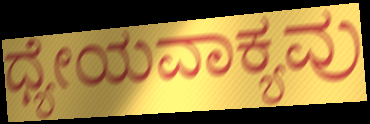
ಧ್ಯೇಯವಾಕ್ಯವು